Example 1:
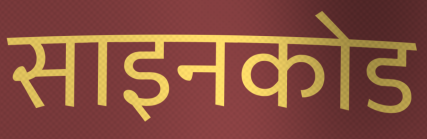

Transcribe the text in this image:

साइनकोड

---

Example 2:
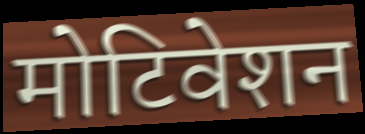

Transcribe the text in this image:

मोटिवेशन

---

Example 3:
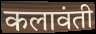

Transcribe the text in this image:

कलावंती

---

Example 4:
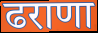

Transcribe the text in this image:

ढराणा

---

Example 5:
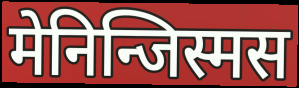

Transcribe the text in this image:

मेनिन्जिस्मस